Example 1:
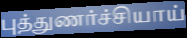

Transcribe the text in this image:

புத்துணர்ச்சியாய்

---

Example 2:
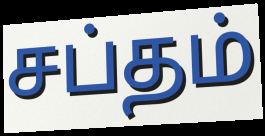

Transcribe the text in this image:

சப்தம்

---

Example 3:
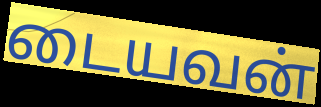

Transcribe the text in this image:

டையவன்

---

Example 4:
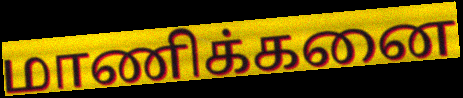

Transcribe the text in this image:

மாணிக்கனை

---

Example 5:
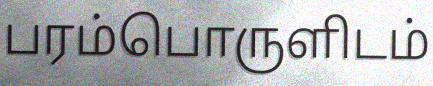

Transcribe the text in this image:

பரம்பொருளிடம்